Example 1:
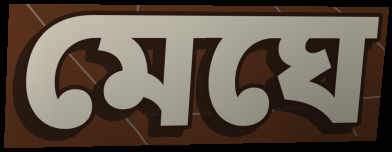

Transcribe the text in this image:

মেঘে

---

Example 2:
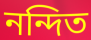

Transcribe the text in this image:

নন্দিত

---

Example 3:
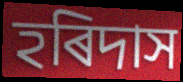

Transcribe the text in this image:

হৰিদাস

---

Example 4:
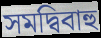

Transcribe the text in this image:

সমদ্বিবাহু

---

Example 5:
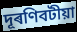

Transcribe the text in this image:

দূৰণিবটীয়া